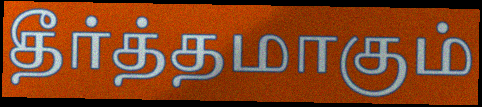
தீர்த்தமாகும்